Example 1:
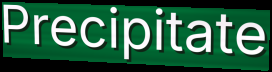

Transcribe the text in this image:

Precipitate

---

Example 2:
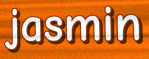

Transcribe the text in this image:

jasmin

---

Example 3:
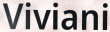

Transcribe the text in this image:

Viviani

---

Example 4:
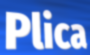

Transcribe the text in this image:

Plica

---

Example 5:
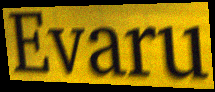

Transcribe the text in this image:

Evaru